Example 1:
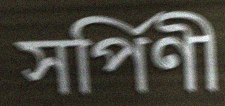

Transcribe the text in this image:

সর্পিণী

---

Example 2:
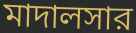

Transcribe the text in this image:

মাদালসার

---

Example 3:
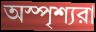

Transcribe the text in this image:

অস্পৃশ্যরা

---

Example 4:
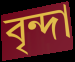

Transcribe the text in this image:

বৃন্দা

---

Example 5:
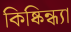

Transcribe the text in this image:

কিষ্কিন্ধ্যা